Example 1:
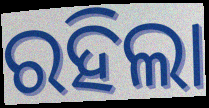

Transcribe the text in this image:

ରହିଲା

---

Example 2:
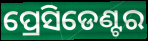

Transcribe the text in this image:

ପ୍ରେସିଡେଣ୍ଟର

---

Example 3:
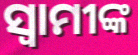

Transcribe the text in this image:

ସ୍ବାମୀଙ୍କ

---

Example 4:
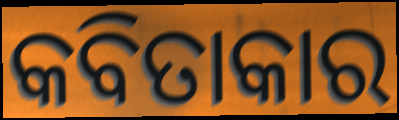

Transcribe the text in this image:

କବିତାକାର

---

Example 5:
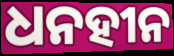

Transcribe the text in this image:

ଧନହୀନ